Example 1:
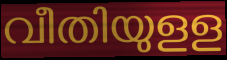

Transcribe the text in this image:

വീതിയുളള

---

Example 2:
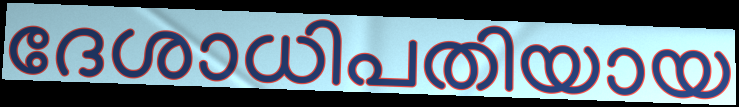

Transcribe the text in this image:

ദേശാധിപതിയായ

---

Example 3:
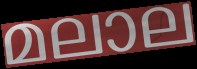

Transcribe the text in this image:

മലാല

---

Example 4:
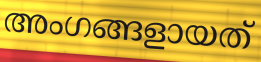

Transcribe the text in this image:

അംഗങ്ങളായത്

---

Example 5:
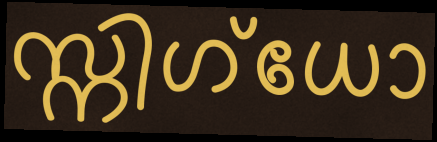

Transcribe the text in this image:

സ്നിഗ്ധോ